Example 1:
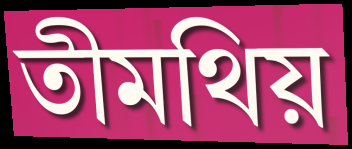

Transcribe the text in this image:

তীমথিয়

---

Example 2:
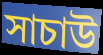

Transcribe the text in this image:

সাচাউ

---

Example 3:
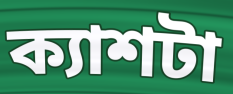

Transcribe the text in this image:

ক্যাশটা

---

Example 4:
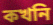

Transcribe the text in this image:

কখনি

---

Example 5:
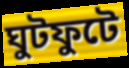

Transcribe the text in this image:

ঘুটফুটে